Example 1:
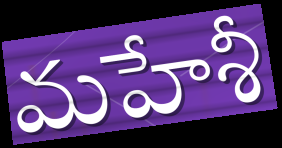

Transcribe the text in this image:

మహేశీ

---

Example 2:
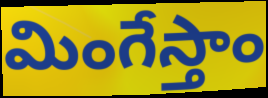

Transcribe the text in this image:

మింగేస్తాం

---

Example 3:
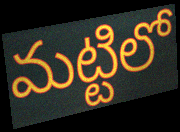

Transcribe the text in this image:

మట్టిలో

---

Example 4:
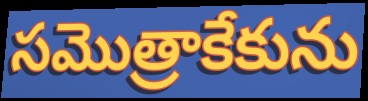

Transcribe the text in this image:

సమొత్రాకేకును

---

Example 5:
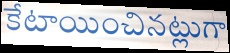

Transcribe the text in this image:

కేటాయించినట్లుగా